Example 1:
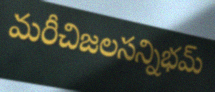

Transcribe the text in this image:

మరీచిజలసన్నిభమ్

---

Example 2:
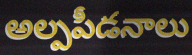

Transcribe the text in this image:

అల్పపీడనాలు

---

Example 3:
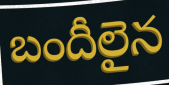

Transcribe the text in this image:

బందీలైన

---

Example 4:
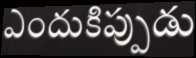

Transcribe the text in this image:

ఎందుకిప్పుడు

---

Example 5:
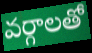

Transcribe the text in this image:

వర్గాలతో